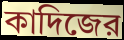
কাদিজের